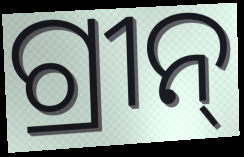
ଗ୍ରୀନ୍